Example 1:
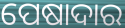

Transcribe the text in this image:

ପେଷାଦାର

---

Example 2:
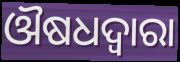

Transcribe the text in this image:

ଔଷଧଦ୍ବାରା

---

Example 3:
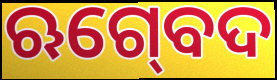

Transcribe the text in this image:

ଋଗ୍‍ବେଦ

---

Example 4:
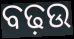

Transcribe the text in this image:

ବଢ଼ଉ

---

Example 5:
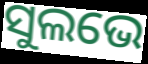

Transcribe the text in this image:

ସୁଲଭେ